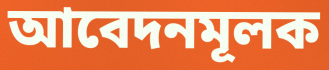
আবেদনমূলক